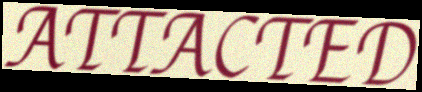
ATTACTED